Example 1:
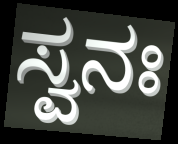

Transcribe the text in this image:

ಸ್ವನಃ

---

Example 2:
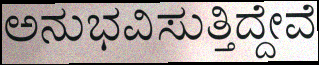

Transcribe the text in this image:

ಅನುಭವಿಸುತ್ತಿದ್ದೇವೆ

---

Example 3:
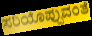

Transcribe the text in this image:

ಸರಿಯೊಪ್ಪುವಂತೆ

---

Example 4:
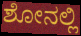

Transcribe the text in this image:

ಶೋನಲ್ಲಿ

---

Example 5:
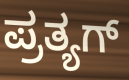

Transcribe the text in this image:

ಪ್ರತ್ಯಗ್